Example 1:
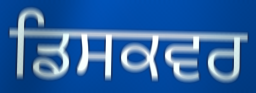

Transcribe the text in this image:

ਡਿਸਕਵਰ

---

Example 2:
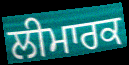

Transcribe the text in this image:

ਲੀਮਾਰਕ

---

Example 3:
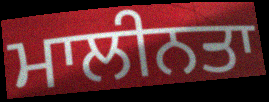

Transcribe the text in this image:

ਮਾਲੀਨਤਾ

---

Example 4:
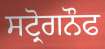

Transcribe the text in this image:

ਸਟ੍ਰੋਗਨੌਫ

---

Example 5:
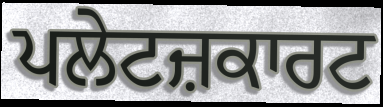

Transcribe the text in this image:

ਪਲੇਟਜ਼ਕਾਰਟ